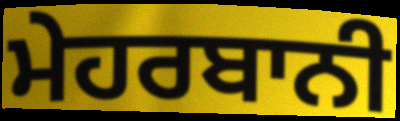
ਮੇਹਰਬਾਨੀ